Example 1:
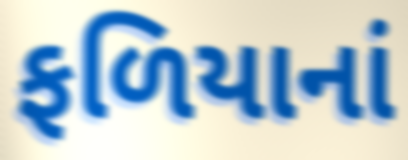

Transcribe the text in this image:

ફળિયાનાં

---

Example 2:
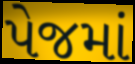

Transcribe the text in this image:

પેજમાં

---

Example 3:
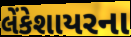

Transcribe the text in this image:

લેંકેશાયરના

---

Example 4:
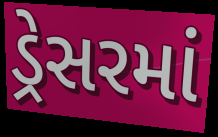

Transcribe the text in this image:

ડ્રેસરમાં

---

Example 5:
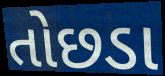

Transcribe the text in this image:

તોછડા